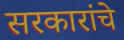
सरकारांचे